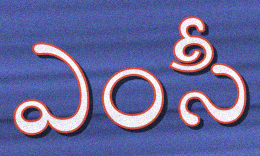
ఎంసీ